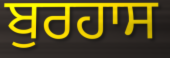
ਬੁਰਹਾਸ